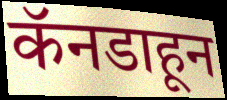
कॅनडाहून